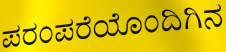
ಪರಂಪರೆಯೊಂದಿಗಿನ